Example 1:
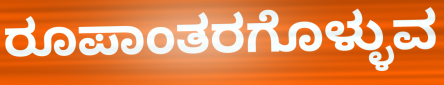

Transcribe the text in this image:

ರೂಪಾಂತರಗೊಳ್ಳುವ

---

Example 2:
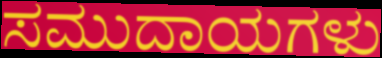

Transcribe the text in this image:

ಸಮುದಾಯಗಳು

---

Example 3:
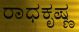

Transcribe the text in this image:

ರಾಧಕೃಷ್ಣ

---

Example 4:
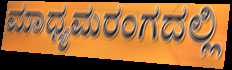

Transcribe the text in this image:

ಮಾಧ್ಯಮರಂಗದಲ್ಲಿ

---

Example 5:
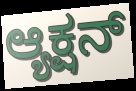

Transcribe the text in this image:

ಆ್ಯಕ್ಷನ್